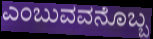
ಎಂಬುವವನೊಬ್ಬ